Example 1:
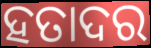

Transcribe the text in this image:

ହତାଦର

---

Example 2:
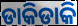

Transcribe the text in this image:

ଡାକିଡାକି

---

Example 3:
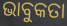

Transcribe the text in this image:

ଭାବୁକତା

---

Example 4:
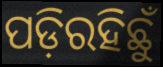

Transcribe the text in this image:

ପଡ଼ିରହିଛୁଁ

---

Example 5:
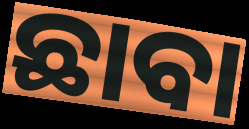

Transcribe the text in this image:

ଛାବା